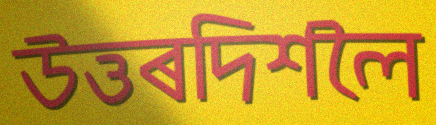
উত্তৰদিশলৈ